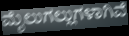
ಮೈಲುಗಲ್ಲುಗಳಾಗಿವೆ